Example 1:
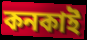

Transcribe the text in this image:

কনকাই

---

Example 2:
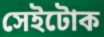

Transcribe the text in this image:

সেইটোক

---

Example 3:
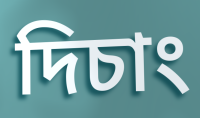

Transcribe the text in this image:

দিচাং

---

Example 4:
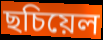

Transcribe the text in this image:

ছচিয়েল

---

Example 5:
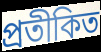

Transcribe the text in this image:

প্ৰতীকিত